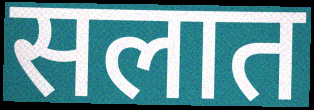
सलात